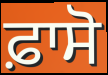
ਫ਼ਾਸੋ